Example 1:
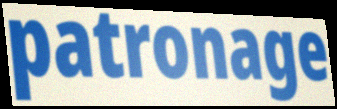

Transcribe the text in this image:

patronage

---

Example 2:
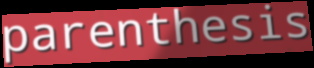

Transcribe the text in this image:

parenthesis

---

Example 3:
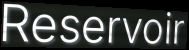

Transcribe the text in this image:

Reservoir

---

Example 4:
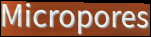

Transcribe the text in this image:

Micropores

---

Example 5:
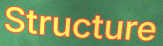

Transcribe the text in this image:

Structure